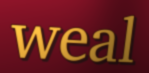
weal